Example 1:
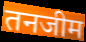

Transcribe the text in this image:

तनजीम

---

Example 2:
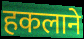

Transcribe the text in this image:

हकलाने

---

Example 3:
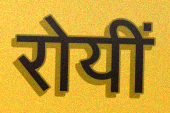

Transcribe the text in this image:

रोयीं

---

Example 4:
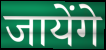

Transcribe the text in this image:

जायेंगे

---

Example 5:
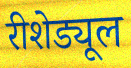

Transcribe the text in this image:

रीशेड्यूल